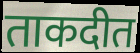
ताकदीत